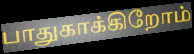
பாதுகாக்கிறோம்